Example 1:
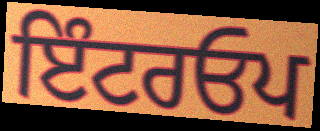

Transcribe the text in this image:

ਇੰਟਰਓਪ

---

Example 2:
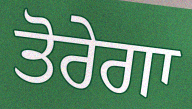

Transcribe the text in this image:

ਤੋਰੇਗਾ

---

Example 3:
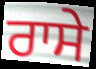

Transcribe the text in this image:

ਰਾਸੇ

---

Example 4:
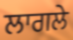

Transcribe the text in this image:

ਲਾਗਲੇ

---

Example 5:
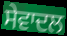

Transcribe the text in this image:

ਸੇਵਾਦਲ